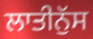
ਲਾਤੀਨੁੱਸ